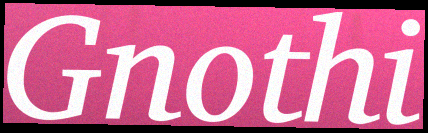
Gnothi